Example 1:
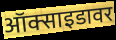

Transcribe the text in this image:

ऑक्साइडावर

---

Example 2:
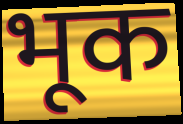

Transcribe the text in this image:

भूक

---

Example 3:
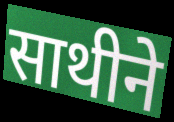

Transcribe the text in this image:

साथीने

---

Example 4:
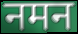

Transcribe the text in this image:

नमन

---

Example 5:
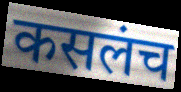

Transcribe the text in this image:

कसलंच